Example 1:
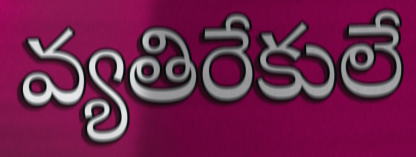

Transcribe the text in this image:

వ్యతిరేకులే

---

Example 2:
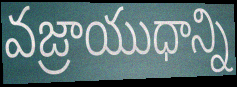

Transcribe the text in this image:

వజ్రాయుధాన్ని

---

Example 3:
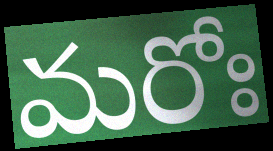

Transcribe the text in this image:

మరోః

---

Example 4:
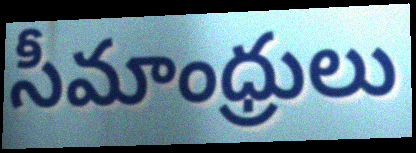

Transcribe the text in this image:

సీమాంధ్రులు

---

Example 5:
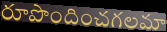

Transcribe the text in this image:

రూపొందించగలమా